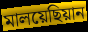
মালয়েছিয়ান